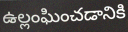
ఉల్లంఘించడానికి